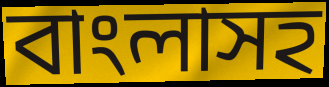
বাংলাসহ